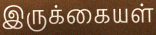
இருக்கையள்